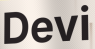
Devi